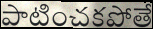
పాటించకపోతే